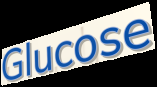
Glucose